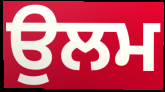
ਉਲਮ